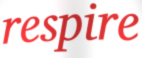
respire